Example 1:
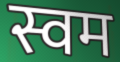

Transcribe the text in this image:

स्वम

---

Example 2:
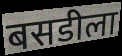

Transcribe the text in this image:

बसडीला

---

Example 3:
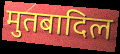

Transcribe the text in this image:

मुतबादिल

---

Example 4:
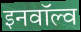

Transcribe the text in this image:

इनवॉल्व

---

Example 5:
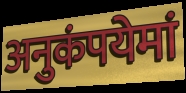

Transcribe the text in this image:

अनुकंपयेमां